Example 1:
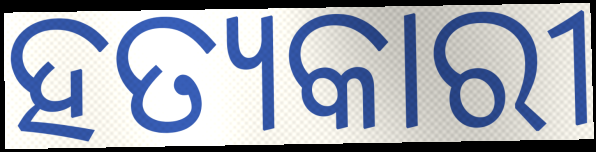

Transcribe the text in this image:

ହତ୍ୟକାରୀ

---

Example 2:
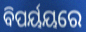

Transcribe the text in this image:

ବିପର୍ୟୟରେ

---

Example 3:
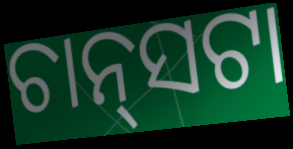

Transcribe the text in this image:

ଚାନ୍‌ସଟା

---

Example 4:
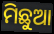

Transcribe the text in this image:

ମିଛୁଆ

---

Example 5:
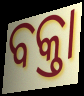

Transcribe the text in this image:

ବକ୍ତା